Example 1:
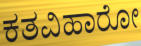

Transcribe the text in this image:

ಕತವಿಹಾರೋ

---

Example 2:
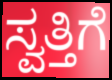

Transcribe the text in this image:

ಸ್ವತ್ತಿಗೆ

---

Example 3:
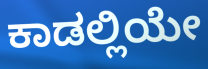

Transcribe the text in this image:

ಕಾಡಲ್ಲಿಯೇ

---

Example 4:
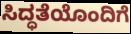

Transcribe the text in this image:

ಸಿದ್ಧತೆಯೊಂದಿಗೆ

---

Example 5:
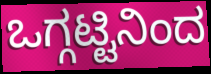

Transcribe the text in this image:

ಒಗ್ಗಟ್ಟಿನಿಂದ